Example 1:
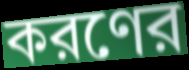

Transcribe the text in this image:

করণের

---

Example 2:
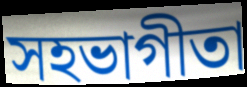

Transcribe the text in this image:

সহভাগীতা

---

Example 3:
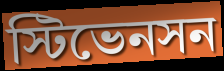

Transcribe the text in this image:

স্টিভেনসন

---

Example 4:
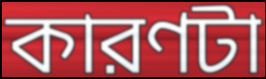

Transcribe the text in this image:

কারণটা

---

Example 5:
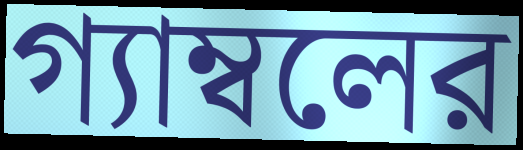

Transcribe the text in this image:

গ্যাম্বলের